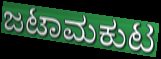
ಜಟಾಮಕುಟ